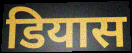
डियास